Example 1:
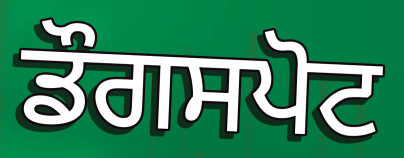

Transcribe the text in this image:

ਡੌਗਸਪੋਟ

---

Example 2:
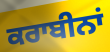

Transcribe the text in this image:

ਕਰਾਬੀਨਾਂ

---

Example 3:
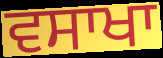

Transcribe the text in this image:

ਵਸਾਖਾ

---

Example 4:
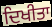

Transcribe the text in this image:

ਦਿਖੀਤਾ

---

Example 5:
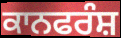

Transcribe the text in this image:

ਕਾਨਫਰੰਸ਼